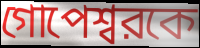
গোপেশ্বরকে